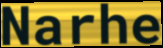
Narhe